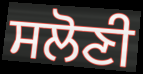
ਸਲੋਣੀ